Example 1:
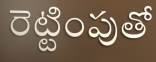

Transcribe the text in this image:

రెట్టింపుతో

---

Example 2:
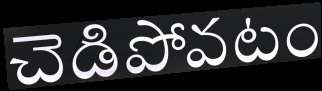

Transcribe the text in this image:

చెడిపోవటం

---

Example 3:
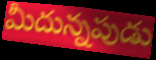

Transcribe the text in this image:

మీదున్నపుడు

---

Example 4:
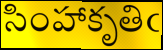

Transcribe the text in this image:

సింహాకృతిఁ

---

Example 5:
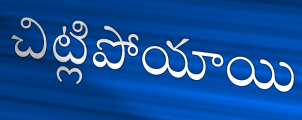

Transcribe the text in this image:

చిట్లిపోయాయి